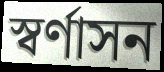
স্বর্ণাসন